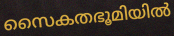
സൈകതഭൂമിയിൽ